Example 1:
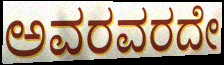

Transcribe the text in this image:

ಅವರವರದೇ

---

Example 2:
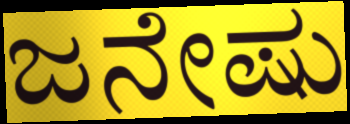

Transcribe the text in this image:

ಜನೇಷು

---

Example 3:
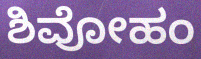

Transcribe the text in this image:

ಶಿವೋಹಂ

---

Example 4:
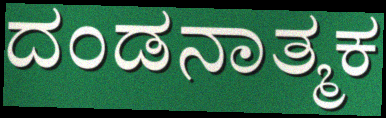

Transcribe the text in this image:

ದಂಡನಾತ್ಮಕ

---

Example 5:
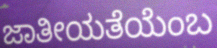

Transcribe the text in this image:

ಜಾತೀಯತೆಯೆಂಬ